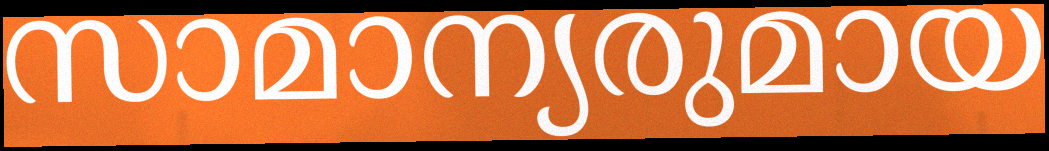
സാമാന്യരുമായ